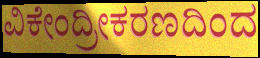
ವಿಕೇಂದ್ರೀಕರಣದಿಂದ